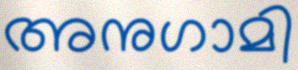
അനുഗാമി